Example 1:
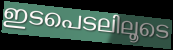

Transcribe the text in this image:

ഇടപെടലിലൂടെ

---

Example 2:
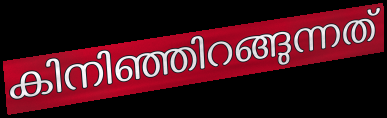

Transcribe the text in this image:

കിനിഞ്ഞിറങ്ങുന്നത്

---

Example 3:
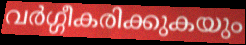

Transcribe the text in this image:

വർഗ്ഗീകരിക്കുകയും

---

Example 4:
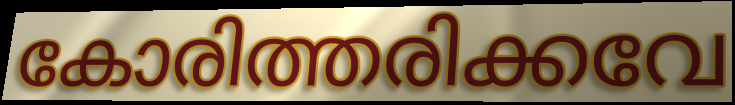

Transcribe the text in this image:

കോരിത്തരിക്കവേ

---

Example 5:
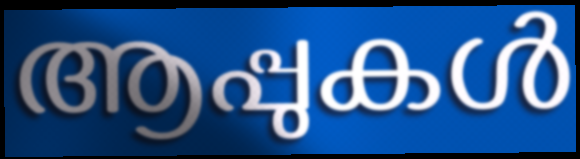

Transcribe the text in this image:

ആപ്പുകൾ